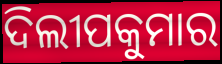
ଦିଲୀପକୁମାର